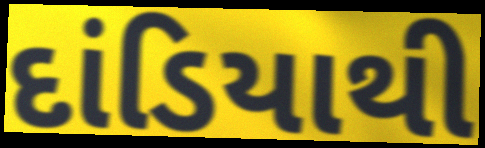
દાંડિયાથી